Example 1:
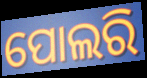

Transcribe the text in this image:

ପୋଲରି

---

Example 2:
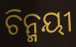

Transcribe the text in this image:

ଚିନ୍ମୟୀ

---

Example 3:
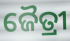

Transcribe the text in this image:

ଜୈତ୍ରୀ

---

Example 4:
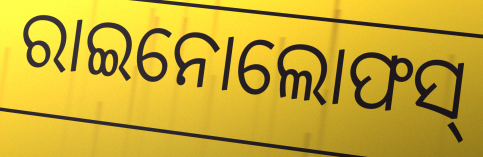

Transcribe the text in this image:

ରାଇନୋଲୋଫସ୍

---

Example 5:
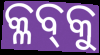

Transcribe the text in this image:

କ୍ଳବ୍‍କୁ